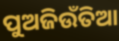
ପୁଅଜିଉଁତିଆ